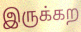
இருக்கற